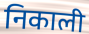
निकाली